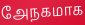
அேநகமாக